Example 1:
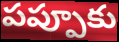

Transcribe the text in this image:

పప్పూకు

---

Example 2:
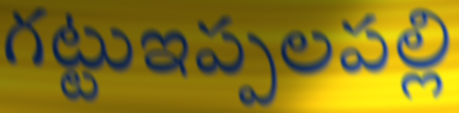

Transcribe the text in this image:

గట్టుఇప్పలపల్లి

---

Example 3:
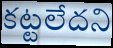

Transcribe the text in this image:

కట్టలేదని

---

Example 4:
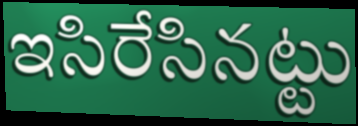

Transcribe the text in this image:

ఇసిరేసినట్టు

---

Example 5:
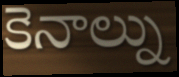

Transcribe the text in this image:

కెనాల్ను